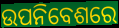
ଉପନିବେଶରେ